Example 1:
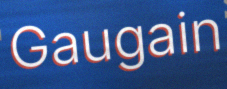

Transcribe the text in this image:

Gaugain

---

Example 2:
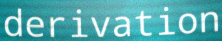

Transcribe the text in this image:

derivation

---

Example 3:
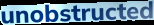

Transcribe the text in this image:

unobstructed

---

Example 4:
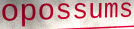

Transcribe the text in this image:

opossums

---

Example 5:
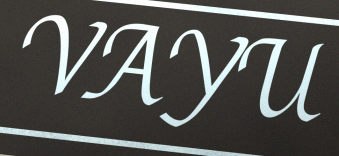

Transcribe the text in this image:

VAYU